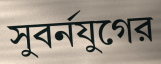
সুবর্নযুগের